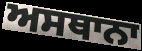
ਅਸਥਾਨਾ